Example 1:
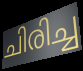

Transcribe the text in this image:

ചിരിച്ച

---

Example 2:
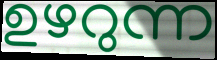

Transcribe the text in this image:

ഉഴറുന്ന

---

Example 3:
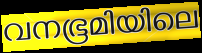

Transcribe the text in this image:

വനഭൂമിയിലെ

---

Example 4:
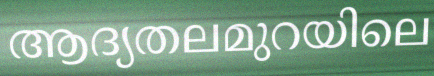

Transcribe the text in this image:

ആദ്യതലമുറയിലെ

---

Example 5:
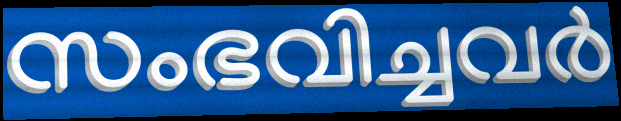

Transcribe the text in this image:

സംഭവിച്ചവർ